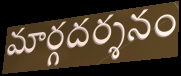
మార్గదర్శనం